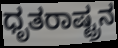
ಧೃತರಾಷ್ಟ್ರನ